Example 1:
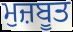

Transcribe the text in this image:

ਮੁਜ਼ਬੂਤ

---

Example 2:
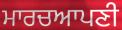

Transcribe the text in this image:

ਮਾਰਚਆਪਣੀ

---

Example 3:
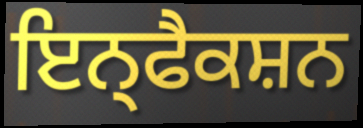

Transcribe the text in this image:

ਇਨ੍ਫੈਕਸ਼ਨ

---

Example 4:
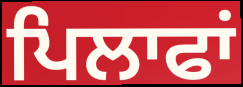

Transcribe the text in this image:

ਪਿਲਾਫਾਂ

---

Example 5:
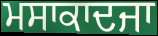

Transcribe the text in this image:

ਮਸਾਕਾਦਜਾ